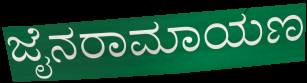
ಜೈನರಾಮಾಯಣ